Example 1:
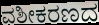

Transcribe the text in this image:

ವಶೀಕರಣದ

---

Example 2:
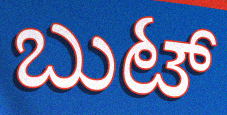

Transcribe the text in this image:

ಬುಟ್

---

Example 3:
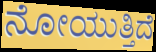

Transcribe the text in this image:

ನೋಯುತ್ತಿದೆ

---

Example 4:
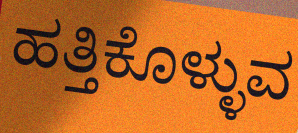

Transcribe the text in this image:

ಹತ್ತಿಕೊಳ್ಳುವ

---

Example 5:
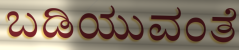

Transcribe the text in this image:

ಬಡಿಯುವಂತೆ